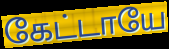
கேட்டாயே